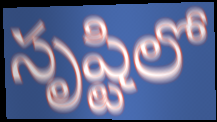
సృష్టిలో